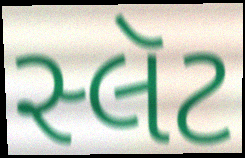
સ્લૅટ